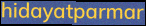
hidayatparmar